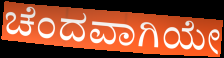
ಚೆಂದವಾಗಿಯೇ